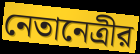
নেতানেত্রীর